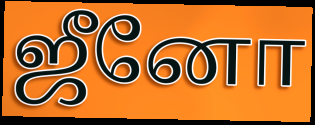
ஜீனோ